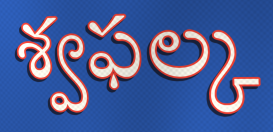
శ్వఫల్క